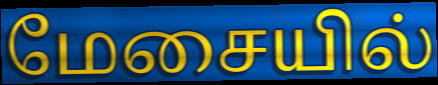
மேசையில்